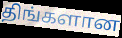
திங்களான